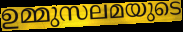
ഉമ്മുസലമയുടെ